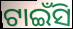
ଟାଇଁସି